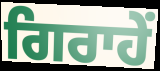
ਗਿਰਾਹੇਂ